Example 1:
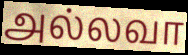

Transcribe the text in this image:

அல்லவா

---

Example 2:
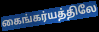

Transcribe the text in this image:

கைங்கர்யத்திலே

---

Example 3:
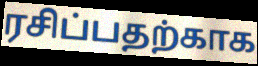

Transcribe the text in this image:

ரசிப்பதற்காக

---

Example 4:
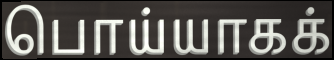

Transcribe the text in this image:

பொய்யாகக்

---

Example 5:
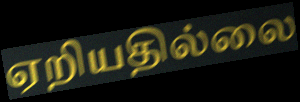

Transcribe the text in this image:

ஏறியதில்லை